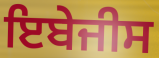
ਇਬੇਜੀਸ